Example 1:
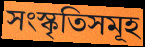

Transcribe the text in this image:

সংস্কৃতিসমূহ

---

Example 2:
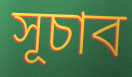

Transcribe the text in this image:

সূচাব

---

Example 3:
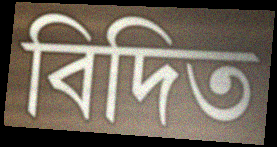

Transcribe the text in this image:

বিদিত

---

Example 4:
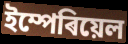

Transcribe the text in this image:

ইম্পেৰিয়েল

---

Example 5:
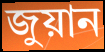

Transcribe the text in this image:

জুয়ান